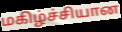
மகிழ்ச்சியான